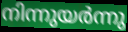
നിന്നുയർന്നു